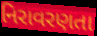
નિરાવરણતા